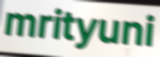
mrityuni